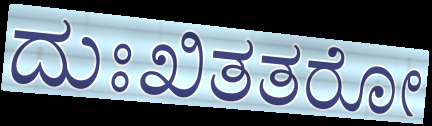
ದುಃಖಿತತರೋ